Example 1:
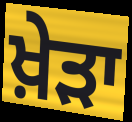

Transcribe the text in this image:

ਖ਼ੇੜਾ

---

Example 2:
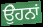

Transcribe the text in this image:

ਉੇਹਨਾਂ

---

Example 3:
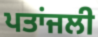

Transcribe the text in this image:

ਪਤਾਂਜਲੀ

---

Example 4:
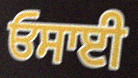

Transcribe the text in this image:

ਓਸਾਈ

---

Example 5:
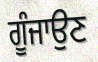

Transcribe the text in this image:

ਗੂੰਜਾਉਣ